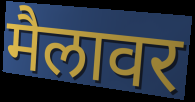
मैलावर